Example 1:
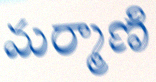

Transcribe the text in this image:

మర్మాణి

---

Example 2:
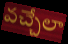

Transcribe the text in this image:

వచ్చేలా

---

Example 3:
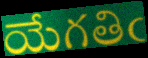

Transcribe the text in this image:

యేగతిఁ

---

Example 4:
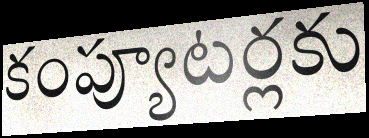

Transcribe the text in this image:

కంప్యూటర్లకు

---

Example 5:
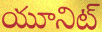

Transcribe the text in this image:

యూనిట్